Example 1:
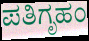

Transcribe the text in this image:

ಪತಿಗೃಹಂ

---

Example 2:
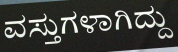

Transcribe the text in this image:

ವಸ್ತುಗಳಾಗಿದ್ದು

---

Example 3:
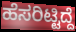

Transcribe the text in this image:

ಹೆಸರಿಟ್ಟಿದ್ದೆ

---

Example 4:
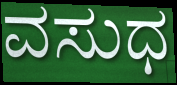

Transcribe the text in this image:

ವಸುಧ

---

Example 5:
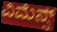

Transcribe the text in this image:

ವಿಮೆನ್ಸ್